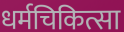
धर्मचिकित्सा